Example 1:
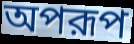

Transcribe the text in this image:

অপরূপ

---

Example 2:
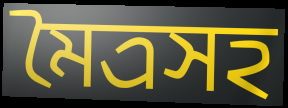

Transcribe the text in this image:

মৈত্রসহ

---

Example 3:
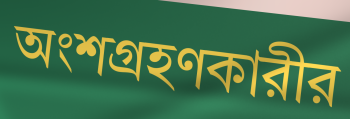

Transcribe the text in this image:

অংশগ্রহণকারীর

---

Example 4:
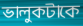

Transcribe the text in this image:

ভালুকটাকে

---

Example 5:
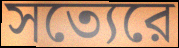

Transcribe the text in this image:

সত্যেরে